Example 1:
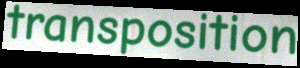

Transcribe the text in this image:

transposition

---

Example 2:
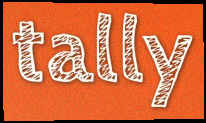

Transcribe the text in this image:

tally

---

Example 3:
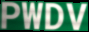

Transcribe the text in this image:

PWDV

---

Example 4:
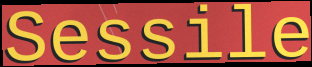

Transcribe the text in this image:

Sessile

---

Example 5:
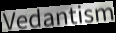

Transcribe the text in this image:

Vedantism